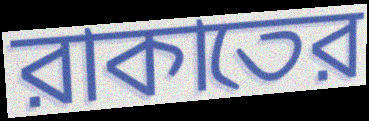
রাকাতের